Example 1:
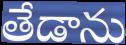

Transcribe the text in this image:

తేడాను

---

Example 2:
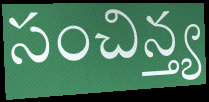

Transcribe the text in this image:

సంచిన్త్య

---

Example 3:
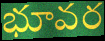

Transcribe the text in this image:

భూవర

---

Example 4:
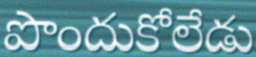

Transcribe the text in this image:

పొందుకోలేడు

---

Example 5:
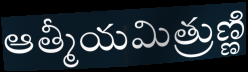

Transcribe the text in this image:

ఆత్మీయమిత్రుణ్ణి